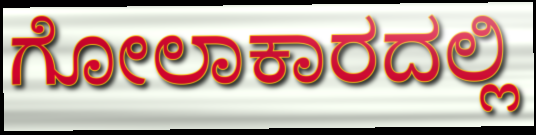
ಗೋಲಾಕಾರದಲ್ಲಿ